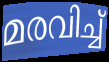
മരവിച്ച്